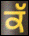
ਕੱ